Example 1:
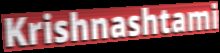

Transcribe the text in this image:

Krishnashtami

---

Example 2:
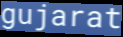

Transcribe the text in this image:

gujarat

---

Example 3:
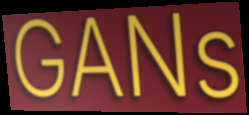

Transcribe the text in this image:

GANs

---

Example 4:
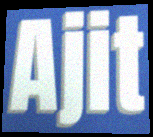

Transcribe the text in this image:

Ajit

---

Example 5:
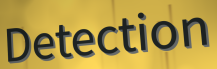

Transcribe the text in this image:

Detection